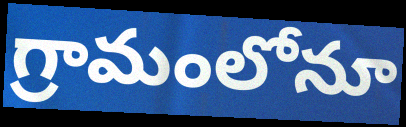
గ్రామంలోనూ